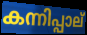
കന്നിപ്പാല്